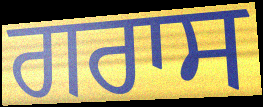
ਗਰਾਸ